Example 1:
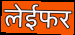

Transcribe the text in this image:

लेईफर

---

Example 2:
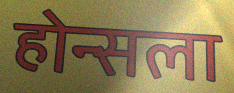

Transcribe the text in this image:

होन्सला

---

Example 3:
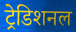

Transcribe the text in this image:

ट्रेडिशनल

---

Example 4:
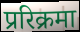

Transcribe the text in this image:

प्ररिक्रमा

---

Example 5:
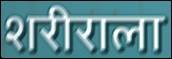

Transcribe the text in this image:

शरीराला